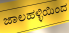
ಜಾಲಹಳ್ಳಿಯಿಂದ